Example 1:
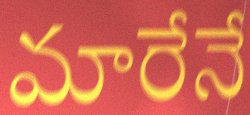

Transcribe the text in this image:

మారేనే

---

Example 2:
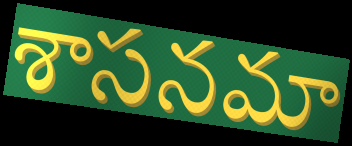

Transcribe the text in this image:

శాసనమా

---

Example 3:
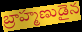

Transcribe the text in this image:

బ్రాహ్మణుడైన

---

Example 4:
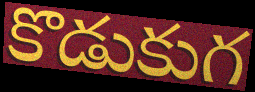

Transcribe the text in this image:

కొడుకుగ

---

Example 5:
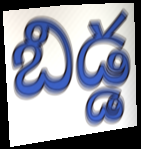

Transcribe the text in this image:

బిడ్డ